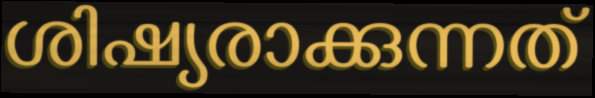
ശിഷ്യരാക്കുന്നത്